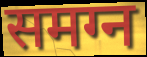
समग्न